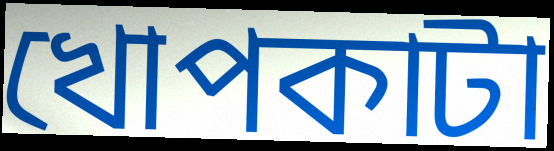
খোপকাটা